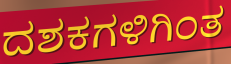
ದಶಕಗಳಿಗಿಂತ